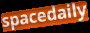
spacedaily